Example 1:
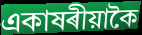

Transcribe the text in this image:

একাষৰীয়াকৈ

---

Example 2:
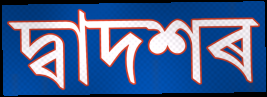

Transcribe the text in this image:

দ্বাদশৰ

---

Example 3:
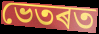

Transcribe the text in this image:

ভেতৰত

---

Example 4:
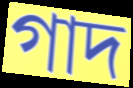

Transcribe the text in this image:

গাদ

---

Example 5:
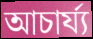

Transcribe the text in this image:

আচাৰ্য্য